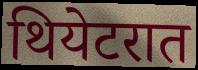
थियेटरात